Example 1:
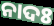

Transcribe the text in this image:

ନାଦଃ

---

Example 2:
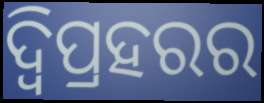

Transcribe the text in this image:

ଦ୍ୱିପ୍ରହରର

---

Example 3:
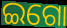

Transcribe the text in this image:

ଇଗୋ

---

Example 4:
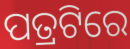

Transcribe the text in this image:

ପତ୍ରଟିରେ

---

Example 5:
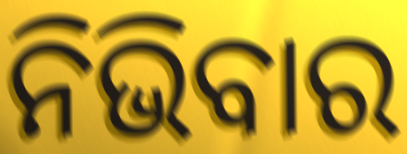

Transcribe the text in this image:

ନିଭିବାର